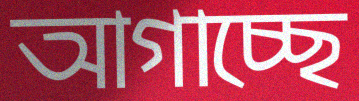
আগাচ্ছে